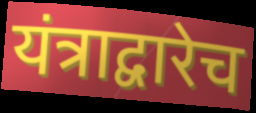
यंत्राद्वारेच